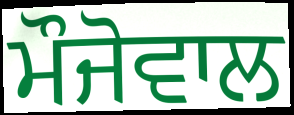
ਮੌਜੋਵਾਲ